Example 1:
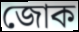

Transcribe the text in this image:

জোক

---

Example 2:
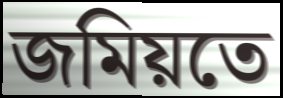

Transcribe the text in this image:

জমিয়তে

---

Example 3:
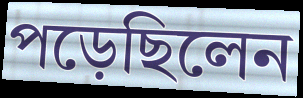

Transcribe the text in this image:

পড়েছিলেন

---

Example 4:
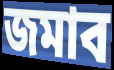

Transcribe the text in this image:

জমাব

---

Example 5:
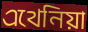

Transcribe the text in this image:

এথেনিয়া